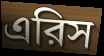
এরিস